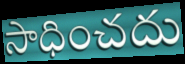
సాధించదు